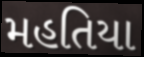
મહતિયા